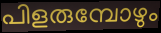
പിളരുമ്പോഴും